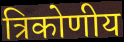
त्रिकोणीय